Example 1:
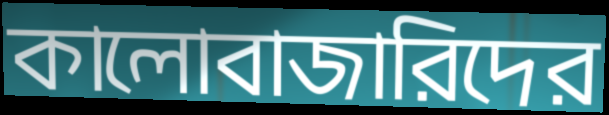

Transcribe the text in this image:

কালোবাজারিদের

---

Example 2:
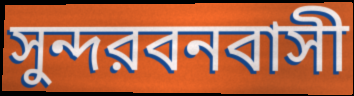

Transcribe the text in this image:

সুন্দরবনবাসী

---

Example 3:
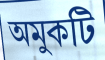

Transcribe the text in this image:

অমুকটি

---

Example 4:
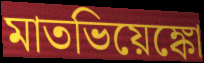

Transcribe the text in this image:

মাতভিয়েঙ্কো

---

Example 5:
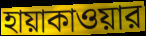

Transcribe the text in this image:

হায়াকাওয়ার